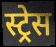
स्ट्रेस